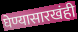
घेण्यासारखंही